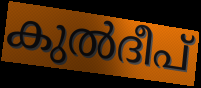
കുൽദീപ്